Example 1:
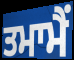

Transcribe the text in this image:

ਤਮਾਮੈਂ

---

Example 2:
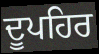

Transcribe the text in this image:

ਦੂਪਹਿਰ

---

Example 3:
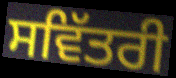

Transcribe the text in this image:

ਸਵਿੱਤਰੀ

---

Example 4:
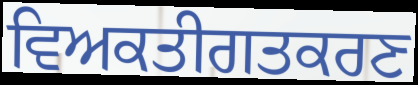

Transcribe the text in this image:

ਵਿਅਕਤੀਗਤਕਰਣ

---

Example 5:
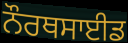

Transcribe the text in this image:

ਨੌਰਥਸਾਈਡ